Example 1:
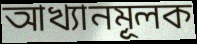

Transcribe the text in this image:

আখ্যানমূলক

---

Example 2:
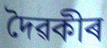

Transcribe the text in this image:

দৈৱকীৰ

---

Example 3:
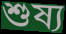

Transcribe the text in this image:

শুষ্য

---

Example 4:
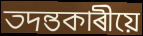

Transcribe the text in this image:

তদন্তকাৰীয়ে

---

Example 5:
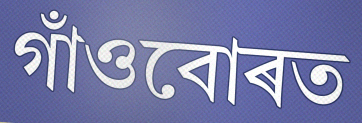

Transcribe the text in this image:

গাঁওবোৰত